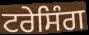
ਟਰੇਸਿੰਗ